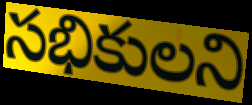
సభికులని